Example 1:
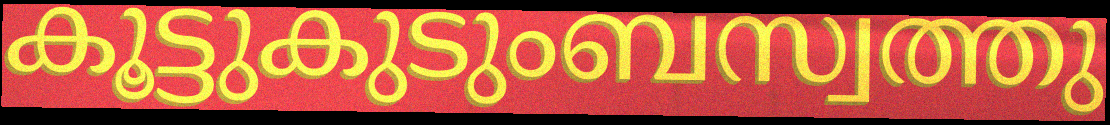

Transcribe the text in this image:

കൂട്ടുകുടുംബസ്വത്തു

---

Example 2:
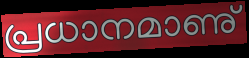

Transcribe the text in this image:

പ്രധാനമാണു്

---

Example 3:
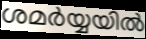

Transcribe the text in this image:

ശമർയ്യയിൽ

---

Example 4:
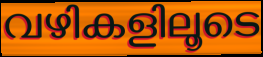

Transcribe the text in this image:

വഴികളിലൂടെ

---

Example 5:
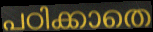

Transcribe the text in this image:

പഠിക്കാതെ